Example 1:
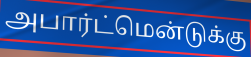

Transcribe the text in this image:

அபார்ட்மென்டுக்கு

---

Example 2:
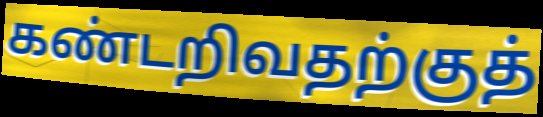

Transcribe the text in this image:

கண்டறிவதற்குத்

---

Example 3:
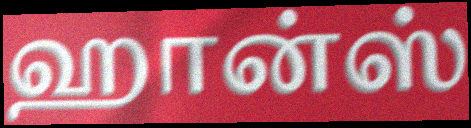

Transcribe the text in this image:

ஹான்ஸ்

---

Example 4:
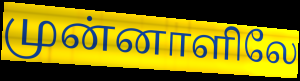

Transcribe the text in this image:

முன்னாளிலே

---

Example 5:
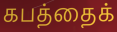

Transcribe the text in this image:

கபத்தைக்